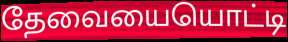
தேவையையொட்டி